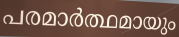
പരമാർത്ഥമായും